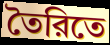
তৈরিতে